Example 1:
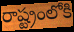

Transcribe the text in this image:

రాష్ట్రంలోకి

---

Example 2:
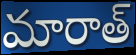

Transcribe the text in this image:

మారాత్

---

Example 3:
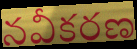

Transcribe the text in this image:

నవీకరణ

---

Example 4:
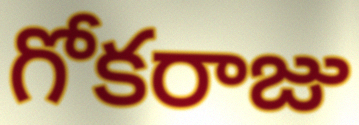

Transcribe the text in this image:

గోకరాజు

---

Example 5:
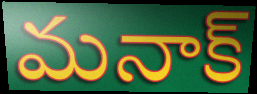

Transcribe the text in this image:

మనాక్